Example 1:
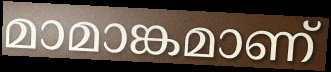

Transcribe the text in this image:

മാമാങ്കമാണ്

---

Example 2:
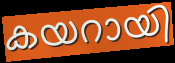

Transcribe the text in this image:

കയറായി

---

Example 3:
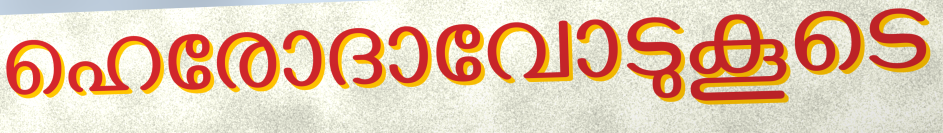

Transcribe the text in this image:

ഹെരോദാവോടുകൂടെ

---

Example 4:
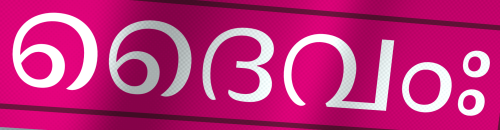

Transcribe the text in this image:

ദൈവംഃ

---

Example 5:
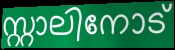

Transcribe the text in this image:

സ്റ്റാലിനോട്